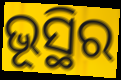
ଭୂସ୍ଥିର